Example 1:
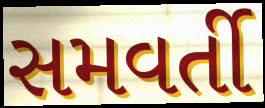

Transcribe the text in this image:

સમવર્તી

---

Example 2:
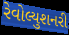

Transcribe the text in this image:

રેવોલ્યુશનરી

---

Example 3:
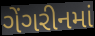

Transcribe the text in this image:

ગેંગરીનમાં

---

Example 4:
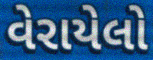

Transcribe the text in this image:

વેરાયેલો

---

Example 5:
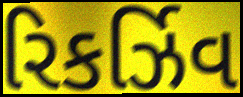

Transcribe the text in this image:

રિકર્ઝિવ